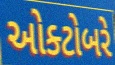
ઓક્ટોબરે